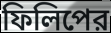
ফিলিপের